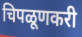
चिपळूणकरी